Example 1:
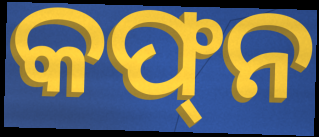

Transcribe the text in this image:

କଫ୍‌ନ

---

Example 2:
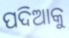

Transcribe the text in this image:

ପଦିଆକୁ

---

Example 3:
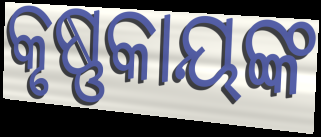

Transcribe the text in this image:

କୃଷ୍ଣକାୟଙ୍କ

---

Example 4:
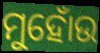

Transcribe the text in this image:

ମୁହୋଁଉ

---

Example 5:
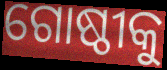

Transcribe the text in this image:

ଗୋଷ୍ଠୀକୁ